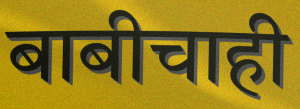
बाबीचाही